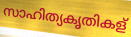
സാഹിത്യകൃതികള്